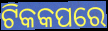
ଟିକକପରେ